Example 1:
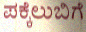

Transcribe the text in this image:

ಪಕ್ಕೆಲುಬಿಗೆ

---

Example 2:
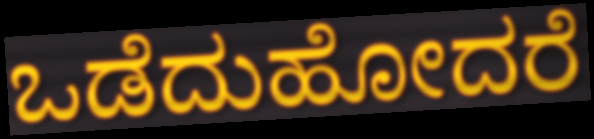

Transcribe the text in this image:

ಒಡೆದುಹೋದರೆ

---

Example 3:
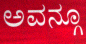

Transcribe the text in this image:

ಅವನ್ಗೂ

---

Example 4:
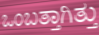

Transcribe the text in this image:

ಒಂಬತ್ತಾಗಿತ್ತು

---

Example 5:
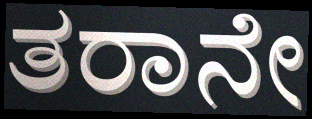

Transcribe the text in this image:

ತರಾನೇ